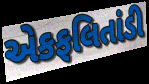
એકફલિતાંડી